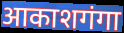
आकाशगंगा